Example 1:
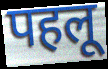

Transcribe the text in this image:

पहलू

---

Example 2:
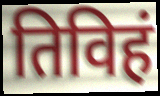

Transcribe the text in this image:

तिविहं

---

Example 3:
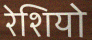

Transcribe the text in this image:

रेशियो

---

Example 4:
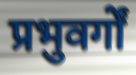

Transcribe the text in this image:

प्रभुवर्गों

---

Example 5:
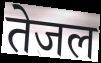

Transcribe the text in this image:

तेजल